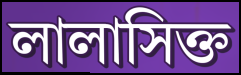
লালাসিক্ত